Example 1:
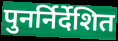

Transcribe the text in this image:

पुनर्निर्देशित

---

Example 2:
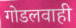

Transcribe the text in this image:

गोडलवाही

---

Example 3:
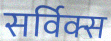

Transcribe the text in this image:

सर्विक्स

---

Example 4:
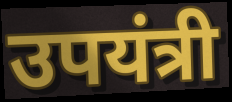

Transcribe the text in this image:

उपयंत्री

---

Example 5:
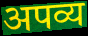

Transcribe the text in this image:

अपव्य